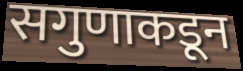
सगुणाकडून